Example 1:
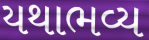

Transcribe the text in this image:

યથાભવ્ય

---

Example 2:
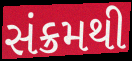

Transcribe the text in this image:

સંક્રમથી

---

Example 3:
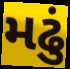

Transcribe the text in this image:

મઢું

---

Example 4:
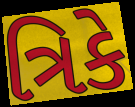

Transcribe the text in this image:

ત્રિકે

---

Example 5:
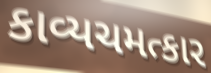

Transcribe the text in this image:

કાવ્યચમત્કાર